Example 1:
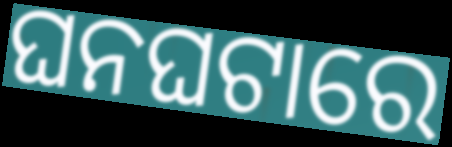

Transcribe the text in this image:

ଘନଘଟାରେ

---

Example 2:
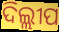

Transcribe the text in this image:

ଦିଲ୍ଲୀପ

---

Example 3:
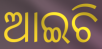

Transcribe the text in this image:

ଆଇଚି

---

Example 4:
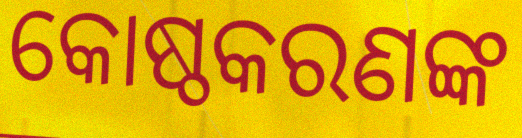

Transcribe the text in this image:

କୋଷ୍ଠକରଣଙ୍କ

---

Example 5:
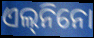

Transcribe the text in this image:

ଏଲ୍‌ନିନୋ